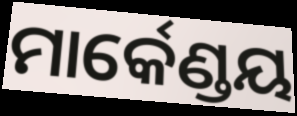
ମାର୍କେଣ୍ଡୟ